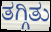
ತಗ್ಗಿತು